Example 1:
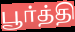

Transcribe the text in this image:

பூர்த்தி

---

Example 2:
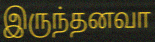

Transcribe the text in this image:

இருந்தனவா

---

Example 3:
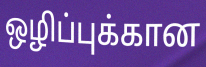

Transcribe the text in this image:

ஒழிப்புக்கான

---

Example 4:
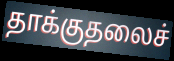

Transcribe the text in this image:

தாக்குதலைச்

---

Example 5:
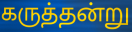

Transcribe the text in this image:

கருத்தன்று